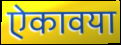
ऐकावया